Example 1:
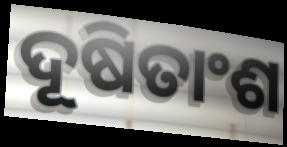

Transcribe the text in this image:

ଦୂଷିତାଂଶ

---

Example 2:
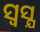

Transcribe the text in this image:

ସ୍ଵସ୍ଯ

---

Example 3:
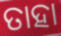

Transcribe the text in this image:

ତାହା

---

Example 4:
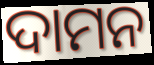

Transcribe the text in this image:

ଦାମନ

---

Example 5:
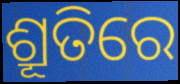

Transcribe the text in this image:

ଶ୍ରୂତିରେ